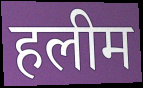
हलीम